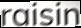
raisin